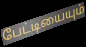
பேட்டியையும்